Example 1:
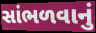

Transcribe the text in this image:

સાંભળવાનું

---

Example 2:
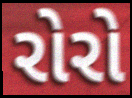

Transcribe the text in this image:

રોરો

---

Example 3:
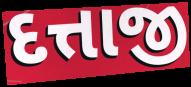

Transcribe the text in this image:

દત્તાજી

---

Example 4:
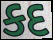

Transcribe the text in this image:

કદ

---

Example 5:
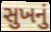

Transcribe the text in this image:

સુખનું